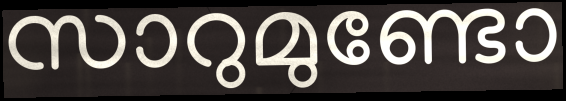
സാറുമുണ്ടോ